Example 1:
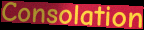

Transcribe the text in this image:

Consolation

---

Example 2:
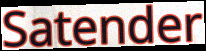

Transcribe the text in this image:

Satender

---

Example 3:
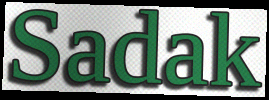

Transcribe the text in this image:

Sadak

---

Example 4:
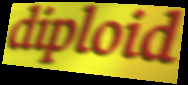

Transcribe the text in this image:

diploid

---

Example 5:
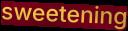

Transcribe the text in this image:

sweetening